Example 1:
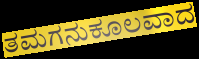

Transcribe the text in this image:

ತಮಗನುಕೂಲವಾದ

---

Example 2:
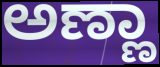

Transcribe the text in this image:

ಅಣ್ಣಾ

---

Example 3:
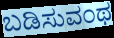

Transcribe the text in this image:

ಬಡಿಸುವಂಥ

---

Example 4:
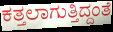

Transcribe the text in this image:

ಕತ್ತಲಾಗುತ್ತಿದ್ದಂತೆ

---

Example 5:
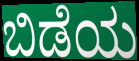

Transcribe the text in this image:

ಬಿಡೆಯ